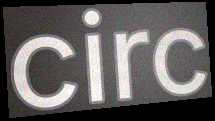
circ